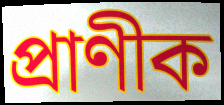
প্ৰাণীক